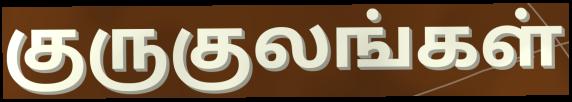
குருகுலங்கள்